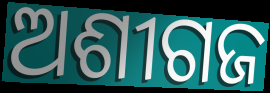
ଅଶୀଗଜ